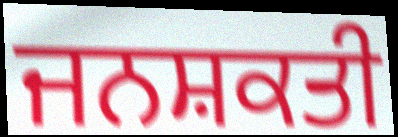
ਜਨਸ਼ਕਤੀ